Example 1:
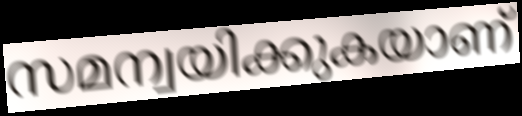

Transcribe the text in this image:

സമന്വയിക്കുകയാണ്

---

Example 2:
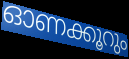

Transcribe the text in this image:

ഓണക്കൂറും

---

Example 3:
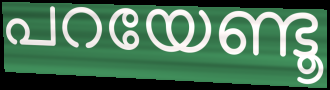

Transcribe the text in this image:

പറയേണ്ടൂ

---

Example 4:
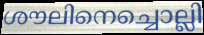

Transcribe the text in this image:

ശൗലിനെച്ചൊല്ലി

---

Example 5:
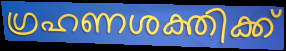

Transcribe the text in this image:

ഗ്രഹണശക്തിക്ക്